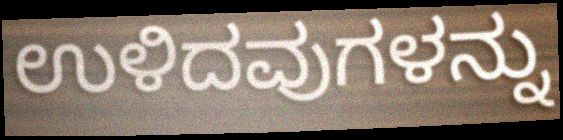
ಉಳಿದವುಗಳನ್ನು